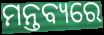
ମନ୍ତବ୍ୟରେ